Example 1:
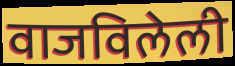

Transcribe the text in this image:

वाजविलेली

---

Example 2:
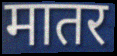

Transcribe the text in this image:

मातर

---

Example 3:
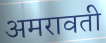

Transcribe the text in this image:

अमरावती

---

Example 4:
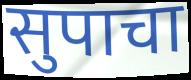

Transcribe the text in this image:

सुपाचा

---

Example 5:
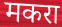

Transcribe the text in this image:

मकरा